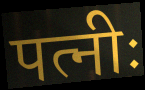
पत्नीः